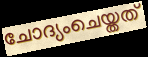
ചോദ്യംചെയ്തത്